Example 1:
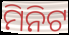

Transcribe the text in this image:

ମିନିଟ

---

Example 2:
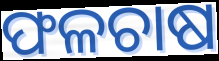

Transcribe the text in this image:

ଫଳଚାଷ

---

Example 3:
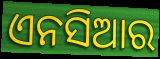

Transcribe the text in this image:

ଏନସିଆର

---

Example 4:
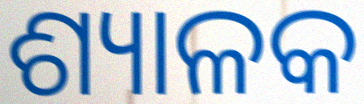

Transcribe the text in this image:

ଶ୍ୟାଳକ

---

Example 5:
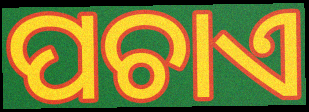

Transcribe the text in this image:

ପଚାଏ